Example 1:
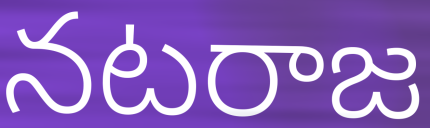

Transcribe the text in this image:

నటరాజ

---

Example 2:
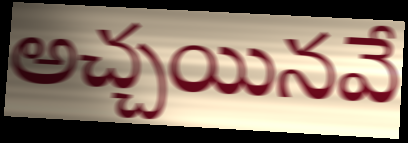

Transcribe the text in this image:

అచ్చయినవే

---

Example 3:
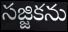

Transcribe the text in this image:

సజ్జికను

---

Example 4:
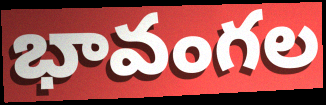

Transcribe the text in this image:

భావంగల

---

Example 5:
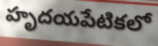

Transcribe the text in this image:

హృదయపేటికలో